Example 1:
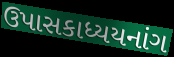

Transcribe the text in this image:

ઉપાસકાધ્યયનાંગ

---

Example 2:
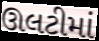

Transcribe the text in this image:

ઊલટીમાં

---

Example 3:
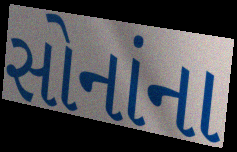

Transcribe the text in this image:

સોનાંના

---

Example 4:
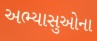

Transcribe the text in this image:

અભ્યાસુઓના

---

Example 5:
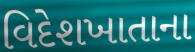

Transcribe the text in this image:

વિદેશખાતાના